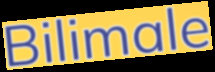
Bilimale